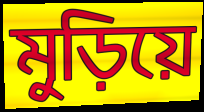
মুড়িয়ে